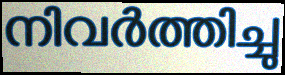
നിവർത്തിച്ചു